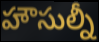
హౌసుల్నీ